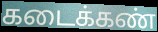
கடைக்கண்